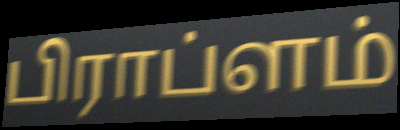
பிராப்ளம்